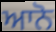
ਆਨੋ